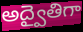
అద్వైతిగా